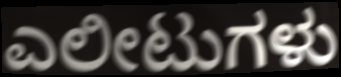
ಎಲೀಟುಗಳು